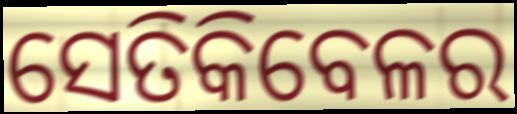
ସେତିକିବେଳର